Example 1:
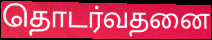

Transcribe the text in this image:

தொடர்வதனை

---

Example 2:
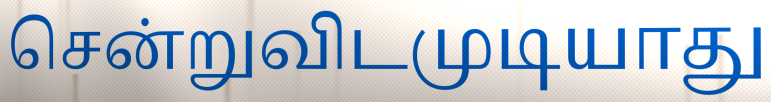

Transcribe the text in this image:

சென்றுவிடமுடியாது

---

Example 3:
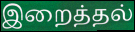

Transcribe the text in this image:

இறைத்தல்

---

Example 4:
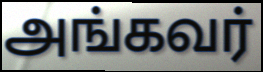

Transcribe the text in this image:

அங்கவர்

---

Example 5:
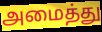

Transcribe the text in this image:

அமைத்து